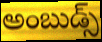
అంబుడ్స్